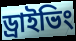
ড্রাইভিং